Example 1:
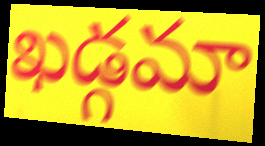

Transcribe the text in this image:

ఖడ్గమా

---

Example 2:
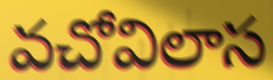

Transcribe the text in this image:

వచోవిలాస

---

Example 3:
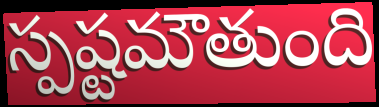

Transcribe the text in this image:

స్పష్టమౌతుంది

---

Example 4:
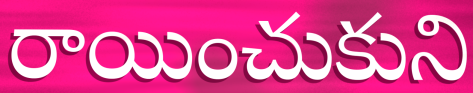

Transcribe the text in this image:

రాయించుకుని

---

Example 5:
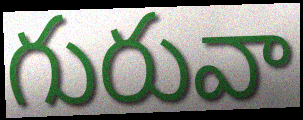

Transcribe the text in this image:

గురువా